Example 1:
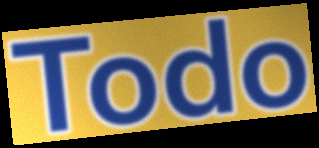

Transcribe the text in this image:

Todo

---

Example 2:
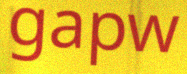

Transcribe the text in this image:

gapw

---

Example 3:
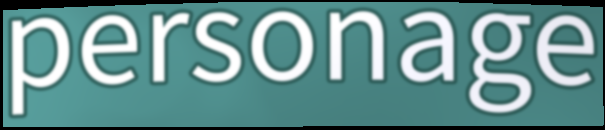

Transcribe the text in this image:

personage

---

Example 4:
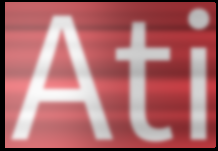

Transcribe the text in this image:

Ati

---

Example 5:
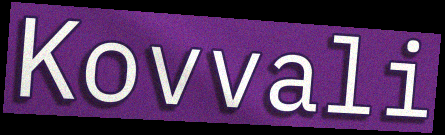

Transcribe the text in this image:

Kovvali